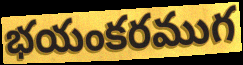
భయంకరముగ